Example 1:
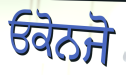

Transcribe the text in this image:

ਓਕੋਨਜੋ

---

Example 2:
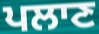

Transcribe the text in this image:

ਪਲਾਣ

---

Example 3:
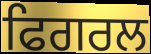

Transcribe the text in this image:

ਫਿਗਰਲ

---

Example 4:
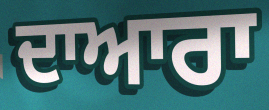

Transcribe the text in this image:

ਦਾਆਰਾ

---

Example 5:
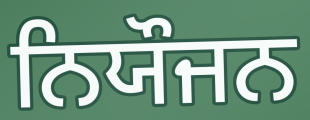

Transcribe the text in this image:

ਨਿਯੌਜਨ